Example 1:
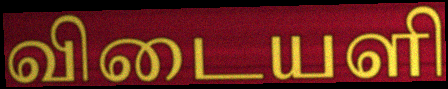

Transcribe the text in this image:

விடையளி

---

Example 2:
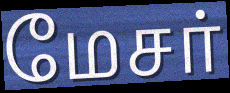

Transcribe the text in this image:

மேசர்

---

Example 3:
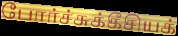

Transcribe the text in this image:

போர்ச்சுக்கீசியக்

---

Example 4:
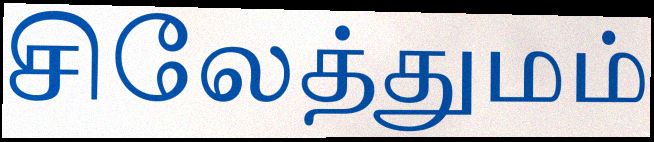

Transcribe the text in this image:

சிலேத்துமம்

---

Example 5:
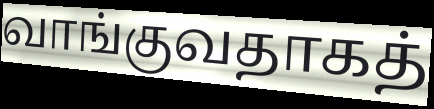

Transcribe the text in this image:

வாங்குவதாகத்